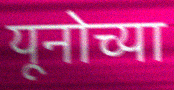
यूनोच्या